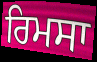
ਰਿਮਸਾ